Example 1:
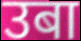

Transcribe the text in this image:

उबा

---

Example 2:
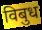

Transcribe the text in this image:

विबुध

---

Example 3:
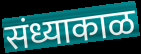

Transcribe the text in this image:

संध्याकाळ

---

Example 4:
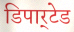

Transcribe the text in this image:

डिपार्टेड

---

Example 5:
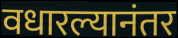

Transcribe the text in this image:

वधारल्यानंतर